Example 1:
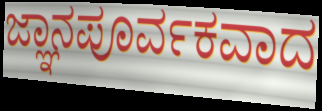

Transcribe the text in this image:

ಜ್ಞಾನಪೂರ್ವಕವಾದ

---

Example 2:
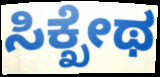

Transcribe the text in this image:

ಸಿಕ್ಖೇಥ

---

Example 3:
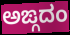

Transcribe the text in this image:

ಅಙ್ಗದಂ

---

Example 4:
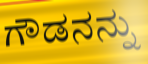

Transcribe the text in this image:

ಗೌಡನನ್ನು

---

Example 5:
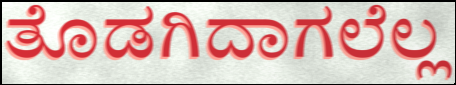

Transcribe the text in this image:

ತೊಡಗಿದಾಗಲೆಲ್ಲ